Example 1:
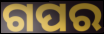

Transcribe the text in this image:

ଗପର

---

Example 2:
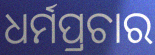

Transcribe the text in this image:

ଧର୍ମପ୍ରଚାର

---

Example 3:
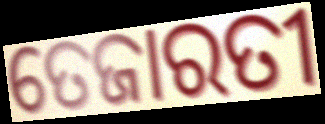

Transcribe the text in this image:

ତେଜାରତୀ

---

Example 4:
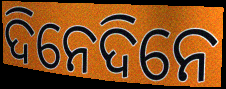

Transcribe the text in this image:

ଦିନେଦିନେ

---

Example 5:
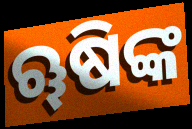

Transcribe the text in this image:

ୠଷିଙ୍କ